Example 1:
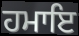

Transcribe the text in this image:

ਹਮਾਇ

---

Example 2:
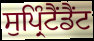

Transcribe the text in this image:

ਸੁਪ੍ਰਿੰਟੈਂਡੈਂਟ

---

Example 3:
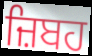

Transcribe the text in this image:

ਜ਼ਿਬਹ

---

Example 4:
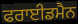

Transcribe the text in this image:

ਫਰਾਈਡਮੈਨ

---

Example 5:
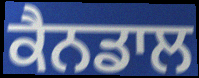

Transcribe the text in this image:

ਕੈਨਡਾਲ